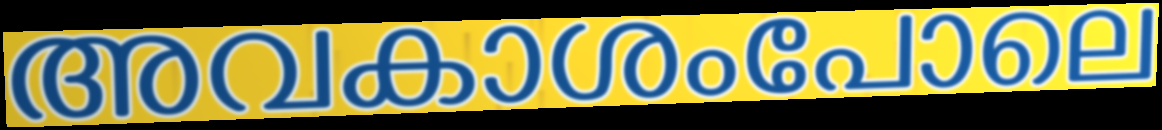
അവകാശംപോലെ